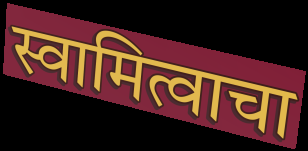
स्वामित्वाचा